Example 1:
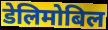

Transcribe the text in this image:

डेलिमोबिल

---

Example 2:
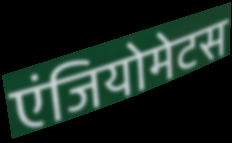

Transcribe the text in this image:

एंजियोमेटस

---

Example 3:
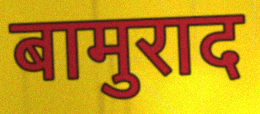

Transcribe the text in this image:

बामुराद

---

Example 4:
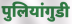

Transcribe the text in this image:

पुलियांगुडी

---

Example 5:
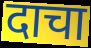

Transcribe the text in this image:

दाचा